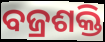
ବଜ୍ରଶକ୍ତି